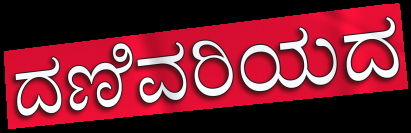
ದಣಿವರಿಯದ